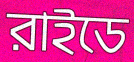
রাইডে